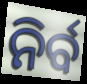
ନିର୍ବ